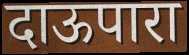
दाऊपारा